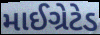
માઈગ્રેટેડ